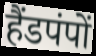
हैंडपंपों